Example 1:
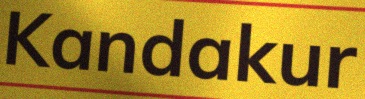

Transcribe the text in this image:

Kandakur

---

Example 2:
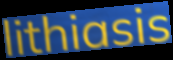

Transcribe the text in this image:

lithiasis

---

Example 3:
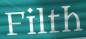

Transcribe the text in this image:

Filth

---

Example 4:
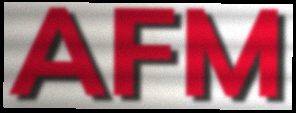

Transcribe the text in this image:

AFM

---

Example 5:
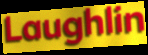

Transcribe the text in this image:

Laughlin